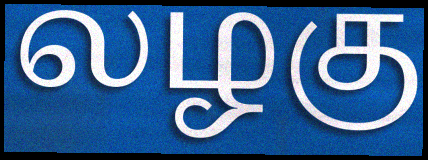
லழகு